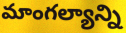
మాంగల్యాన్ని